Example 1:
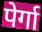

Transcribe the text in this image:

पेर्गा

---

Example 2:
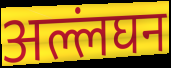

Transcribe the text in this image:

अल्लंघन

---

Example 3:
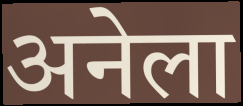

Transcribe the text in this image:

अनेला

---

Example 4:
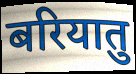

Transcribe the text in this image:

बरियातु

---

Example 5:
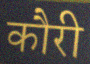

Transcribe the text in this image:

कौरी